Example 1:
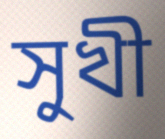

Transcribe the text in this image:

সুখী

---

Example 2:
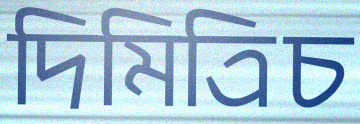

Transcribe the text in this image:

দিমিত্রিচ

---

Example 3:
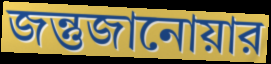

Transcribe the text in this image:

জন্তুজানোয়ার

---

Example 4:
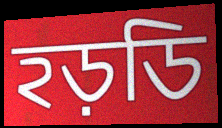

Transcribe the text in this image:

হড়ডি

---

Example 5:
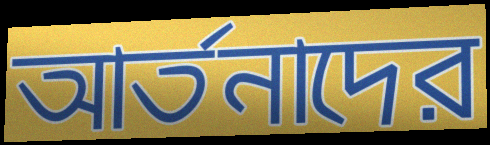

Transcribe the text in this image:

আর্তনাদের